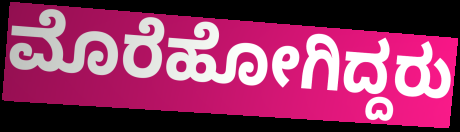
ಮೊರೆಹೋಗಿದ್ದರು